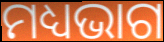
ମଧ୍ୟଭାଗ